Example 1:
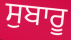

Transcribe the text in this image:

ਸੁਬਾਰੂ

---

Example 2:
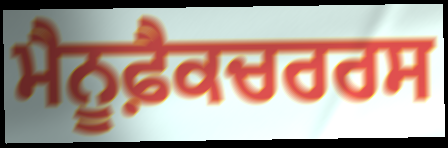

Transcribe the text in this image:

ਮੈਨੂਫ਼ੈਕਚਰਰਸ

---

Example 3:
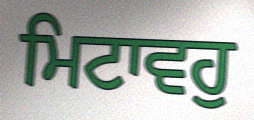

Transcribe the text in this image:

ਮਿਟਾਵਹੁ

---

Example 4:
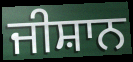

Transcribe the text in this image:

ਜੀਸ਼ਾਨ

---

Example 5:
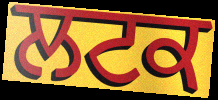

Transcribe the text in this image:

ਲਟਕ